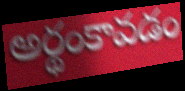
అర్థంకావడం